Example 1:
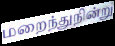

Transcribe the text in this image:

மறைந்துநின்று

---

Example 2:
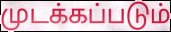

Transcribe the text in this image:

முடக்கப்படும்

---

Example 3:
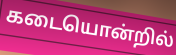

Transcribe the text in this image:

கடையொன்றில்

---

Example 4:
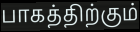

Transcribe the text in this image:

பாகத்திற்கும்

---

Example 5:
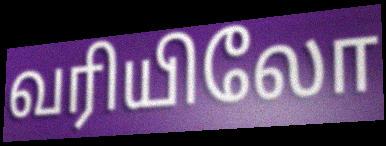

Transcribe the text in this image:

வரியிலோ